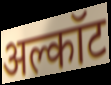
अल्कॉट